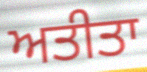
ਅਤੀਤਾ